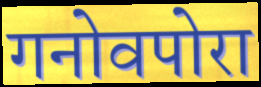
गनोवपोरा